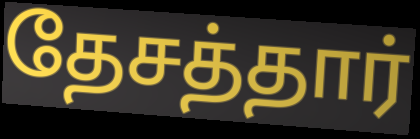
தேசத்தார்